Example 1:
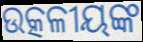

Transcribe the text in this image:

ଉତ୍କଳୀୟଙ୍କ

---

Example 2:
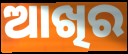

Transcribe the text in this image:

ଆଖିର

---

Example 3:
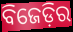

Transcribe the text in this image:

ବିଜେଡ଼ିର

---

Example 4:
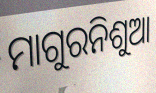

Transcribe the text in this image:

ମାଗୁରନିଶୁଆ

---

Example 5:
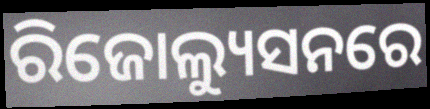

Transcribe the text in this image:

ରିଜୋଲ୍ୟୁସନରେ